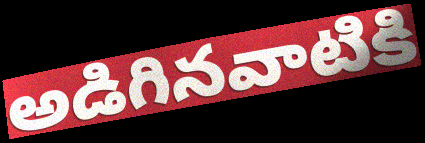
అడిగినవాటికి